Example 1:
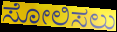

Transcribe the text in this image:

ಸೋಲಿಸಲು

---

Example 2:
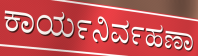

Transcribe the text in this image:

ಕಾರ್ಯನಿರ್ವಹಣಾ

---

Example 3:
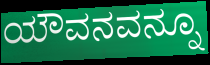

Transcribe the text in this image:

ಯೌವನವನ್ನೂ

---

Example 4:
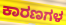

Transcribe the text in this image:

ಕಾರಣಗಳ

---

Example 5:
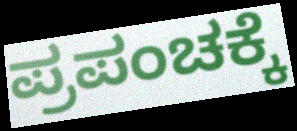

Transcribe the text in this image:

ಪ್ರಪಂಚಕ್ಕೆ